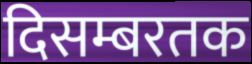
दिसम्बरतक